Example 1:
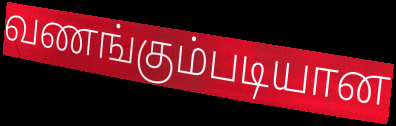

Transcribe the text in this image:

வணங்கும்படியான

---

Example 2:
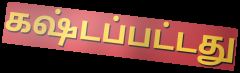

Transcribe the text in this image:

கஷ்டப்பட்டது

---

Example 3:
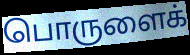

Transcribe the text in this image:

பொருளைக்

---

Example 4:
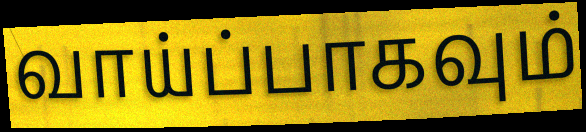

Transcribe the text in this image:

வாய்ப்பாகவும்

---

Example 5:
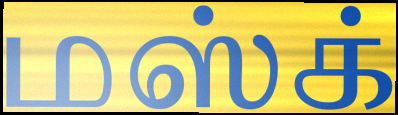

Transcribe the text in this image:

மஸ்க்